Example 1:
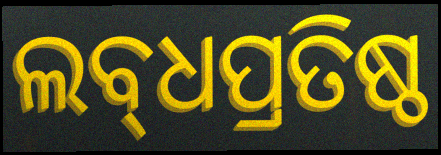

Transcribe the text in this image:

ଲବ୍‌ଧପ୍ରତିଷ୍ଠ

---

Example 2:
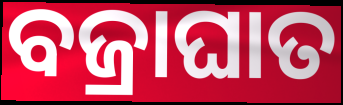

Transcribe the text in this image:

ବଜ୍ରାଘାତ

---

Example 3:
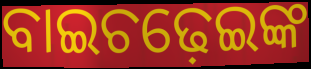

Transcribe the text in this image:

ବାଇଚଢ଼େଇଙ୍କ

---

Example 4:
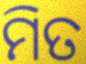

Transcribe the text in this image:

ମିତ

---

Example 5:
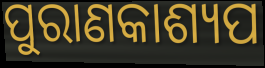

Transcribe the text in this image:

ପୁରାଣକାଶ୍ୟପ